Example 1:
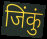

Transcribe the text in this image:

जिंकुं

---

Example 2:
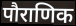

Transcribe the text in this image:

पौराणिक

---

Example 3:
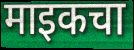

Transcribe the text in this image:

माइकचा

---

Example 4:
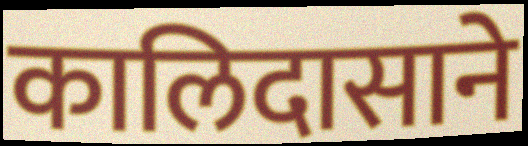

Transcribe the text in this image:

कालिदासाने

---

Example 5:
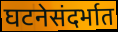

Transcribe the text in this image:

घटनेसंदर्भात